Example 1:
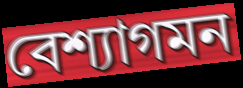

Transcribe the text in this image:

বেশ্যাগমন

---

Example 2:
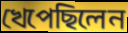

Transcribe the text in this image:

খেপেছিলেন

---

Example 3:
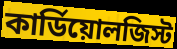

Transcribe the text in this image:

কার্ডিয়োলজিস্ট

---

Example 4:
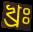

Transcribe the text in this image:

খ্রঃ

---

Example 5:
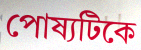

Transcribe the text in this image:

পোষ্যটিকে